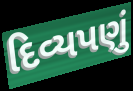
દિવ્યપણું